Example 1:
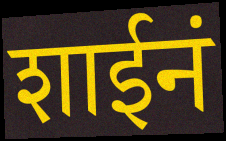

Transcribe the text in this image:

शाईनं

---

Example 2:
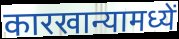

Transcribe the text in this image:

कारखान्यामध्यें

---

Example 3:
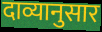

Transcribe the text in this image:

दाव्यानुसार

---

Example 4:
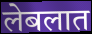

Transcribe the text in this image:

लेबलात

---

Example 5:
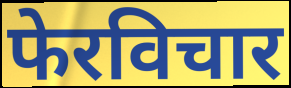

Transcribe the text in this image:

फेरविचार